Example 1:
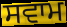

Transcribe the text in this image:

ਸਵਾਮ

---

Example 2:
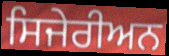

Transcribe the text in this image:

ਸਿਜੇਰੀਅਨ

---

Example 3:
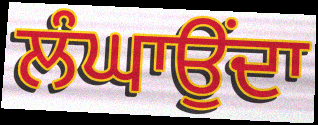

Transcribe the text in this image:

ਲੰਘਾਉਂਦਾ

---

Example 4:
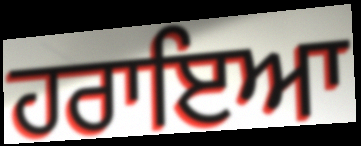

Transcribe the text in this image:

ਹਰਾਇਆ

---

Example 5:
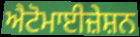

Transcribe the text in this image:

ਐਟੋਮਾਈਜ਼ੇਸ਼ਨ